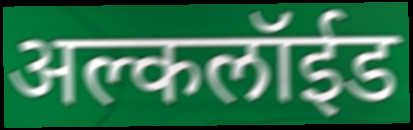
अल्कलॉईड